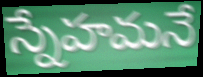
స్నేహమనే